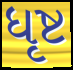
ધૃષ્ટ